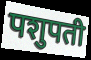
पशुपती